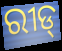
ରୀଡ୍